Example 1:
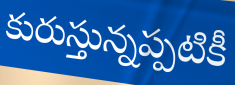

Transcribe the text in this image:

కురుస్తున్నప్పటికీ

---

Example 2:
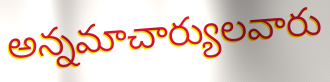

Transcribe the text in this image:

అన్నమాచార్యులవారు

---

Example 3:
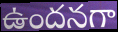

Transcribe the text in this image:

ఉందనగా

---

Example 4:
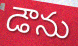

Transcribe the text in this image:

డౌను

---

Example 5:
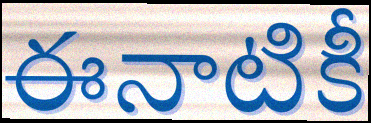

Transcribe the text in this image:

ఈనాటికీ